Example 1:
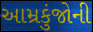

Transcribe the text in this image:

આમ્રકુંજોની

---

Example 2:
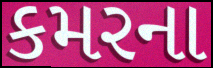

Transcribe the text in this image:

કમરના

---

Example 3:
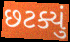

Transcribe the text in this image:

છટક્યું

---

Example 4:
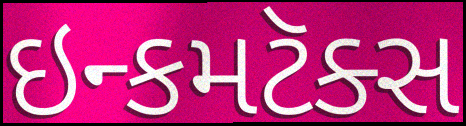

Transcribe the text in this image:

ઇન્કમટૅક્સ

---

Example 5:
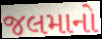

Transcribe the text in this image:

જલમાનો